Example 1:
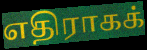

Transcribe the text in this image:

எதிராகக்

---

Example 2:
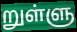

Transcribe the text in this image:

றுள்ளு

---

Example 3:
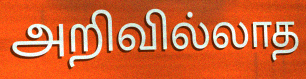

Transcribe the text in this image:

அறிவில்லாத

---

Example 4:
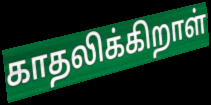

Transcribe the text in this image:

காதலிக்கிறாள்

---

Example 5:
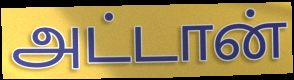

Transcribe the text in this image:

அட்டான்